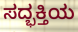
ಸದ್ಭಕ್ತಿಯ